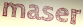
maser